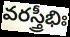
వరస్త్రీభిః